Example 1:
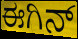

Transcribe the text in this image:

ಈಗಿನ್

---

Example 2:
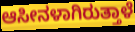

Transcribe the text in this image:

ಆಸೀನಳಾಗಿರುತ್ತಾಳೆ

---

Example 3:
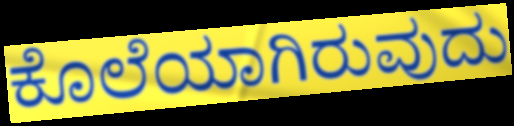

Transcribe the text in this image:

ಕೊಲೆಯಾಗಿರುವುದು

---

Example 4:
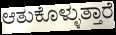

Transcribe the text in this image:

ಆತುಕೊಳ್ಳುತ್ತಾರೆ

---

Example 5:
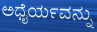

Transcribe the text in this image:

ಅಧೈರ್ಯವನ್ನು